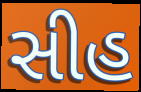
સીહ